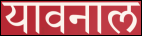
यावनाल